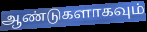
ஆண்டுகளாகவும்